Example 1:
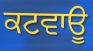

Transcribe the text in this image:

ਕਟਵਾਊ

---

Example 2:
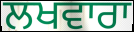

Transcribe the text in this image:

ਲਖਵਾਰਾ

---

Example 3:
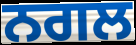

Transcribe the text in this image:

ਨਗਲ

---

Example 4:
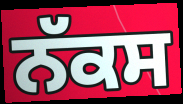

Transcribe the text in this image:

ਨੱਕਸ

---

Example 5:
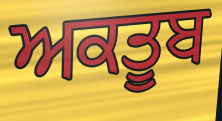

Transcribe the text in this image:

ਅਕਤੂਬ